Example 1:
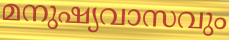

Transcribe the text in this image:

മനുഷ്യവാസവും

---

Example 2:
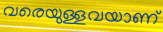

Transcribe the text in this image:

വരെയുള്ളവയാണ്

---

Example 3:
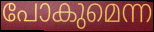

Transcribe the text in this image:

പോകുമെന്ന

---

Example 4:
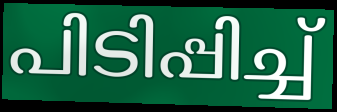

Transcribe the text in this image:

പിടിപ്പിച്ച്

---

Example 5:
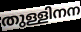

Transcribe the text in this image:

തുള്ളിനന